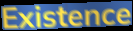
Existence